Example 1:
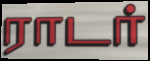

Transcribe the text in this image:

ராடர்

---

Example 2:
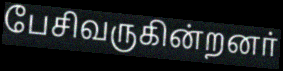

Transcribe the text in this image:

பேசிவருகின்றனர்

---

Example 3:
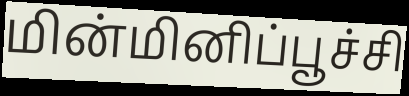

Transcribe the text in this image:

மின்மினிப்பூச்சி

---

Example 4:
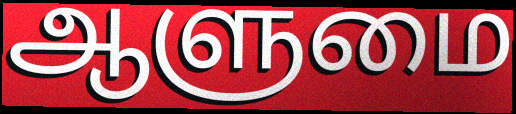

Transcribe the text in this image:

ஆளுமை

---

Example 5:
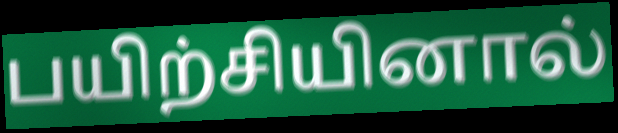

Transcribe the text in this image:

பயிற்சியினால்